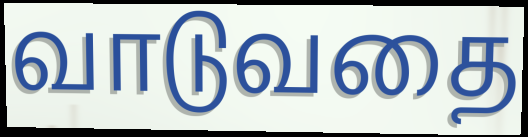
வாடுவதை